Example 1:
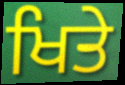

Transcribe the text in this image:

ਖਿਤੇ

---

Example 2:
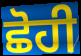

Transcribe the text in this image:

ਛੋਹੀ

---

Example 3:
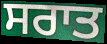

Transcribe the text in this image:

ਸਰਾਤ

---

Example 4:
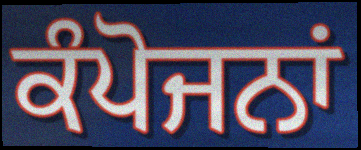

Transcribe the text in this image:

ਕੰਪੋਜਨਾਂ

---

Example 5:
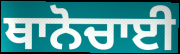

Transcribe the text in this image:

ਥਾਨੋਚਾਈ